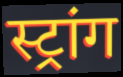
स्ट्रांग